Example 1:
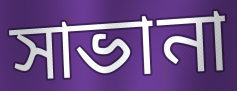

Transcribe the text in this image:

সাভানা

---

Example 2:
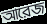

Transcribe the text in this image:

আরেজ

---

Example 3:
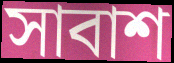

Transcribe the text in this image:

সাবাশ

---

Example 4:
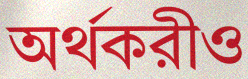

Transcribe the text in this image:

অর্থকরীও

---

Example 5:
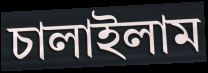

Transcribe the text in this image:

চালাইলাম